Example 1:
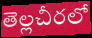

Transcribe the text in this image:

తెల్లచీరలో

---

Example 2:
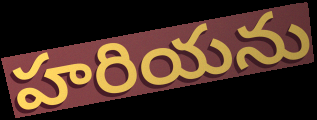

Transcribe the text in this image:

హరియను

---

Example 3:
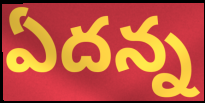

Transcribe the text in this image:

ఏదన్న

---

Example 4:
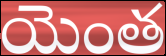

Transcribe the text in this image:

యెంత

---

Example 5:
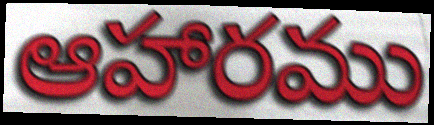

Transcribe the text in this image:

ఆహారము